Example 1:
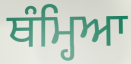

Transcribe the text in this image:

ਥੰਮ੍ਹ੍ਹਿਆ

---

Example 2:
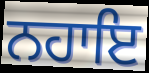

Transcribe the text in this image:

ਨਹਾਇ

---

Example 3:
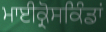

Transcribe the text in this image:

ਮਾਈਕ੍ਰੋਸਕਿੰਡਾਂ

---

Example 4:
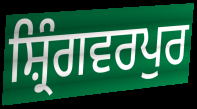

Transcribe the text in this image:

ਸ਼੍ਰਿੰਗਵਰਪੁਰ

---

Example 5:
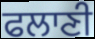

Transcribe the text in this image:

ਫਲਾਣੀ